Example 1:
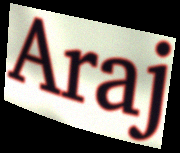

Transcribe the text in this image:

Araj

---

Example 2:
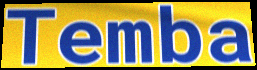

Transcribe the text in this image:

Temba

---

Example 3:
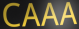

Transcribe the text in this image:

CAAA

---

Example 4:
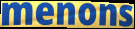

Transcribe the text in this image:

menons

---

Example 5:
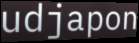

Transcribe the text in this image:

udjapon